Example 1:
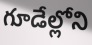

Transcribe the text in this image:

గూడేల్లోని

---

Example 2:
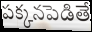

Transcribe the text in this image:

పక్కనపెడితే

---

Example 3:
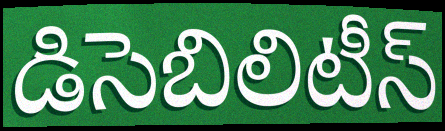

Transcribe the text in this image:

డిసెబిలిటీస్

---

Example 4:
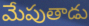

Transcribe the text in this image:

మేపుతాడు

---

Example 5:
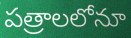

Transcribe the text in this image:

పత్రాలలోనూ